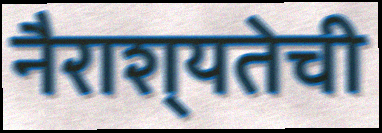
नैराश्यतेची